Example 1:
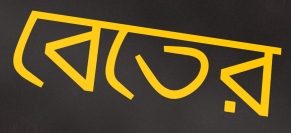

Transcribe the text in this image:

বেতের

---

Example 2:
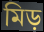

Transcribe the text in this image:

মিড়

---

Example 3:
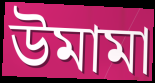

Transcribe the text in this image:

উমামা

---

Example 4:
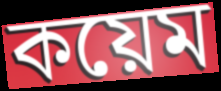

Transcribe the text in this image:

কয়েম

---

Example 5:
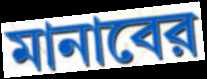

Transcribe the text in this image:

মানাবের